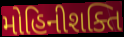
મોહિનીશક્તિ